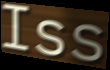
Iss